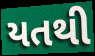
યતથી